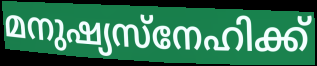
മനുഷ്യസ്നേഹിക്ക്